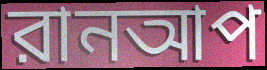
রানআপ